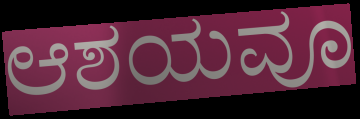
ಆಶಯವೂ